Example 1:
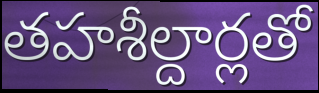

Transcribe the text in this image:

తహశీల్దార్లతో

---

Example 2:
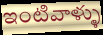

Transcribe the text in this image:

ఇంటివాళ్ళు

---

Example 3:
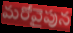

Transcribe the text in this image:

మరోవైపున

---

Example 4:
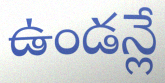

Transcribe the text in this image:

ఉండన్లే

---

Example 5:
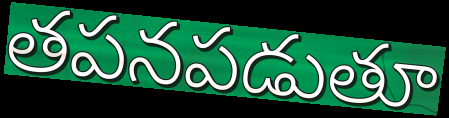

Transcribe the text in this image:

తపనపడుతూ